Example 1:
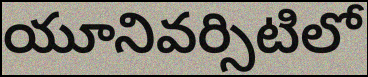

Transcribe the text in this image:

యూనివర్సిటిలో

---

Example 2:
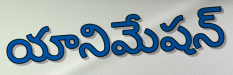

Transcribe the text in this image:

యానిమేషన్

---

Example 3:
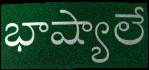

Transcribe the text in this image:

భాష్యాలే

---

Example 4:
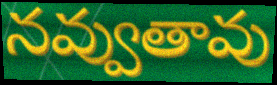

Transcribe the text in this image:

నవ్వుతావు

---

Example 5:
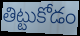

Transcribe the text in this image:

తిట్టుకోడం